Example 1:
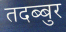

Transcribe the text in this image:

तदब्बुर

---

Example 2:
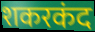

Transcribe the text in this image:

शकरकंद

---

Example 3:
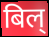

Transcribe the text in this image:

बिल्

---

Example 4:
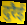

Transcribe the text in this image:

दुरैई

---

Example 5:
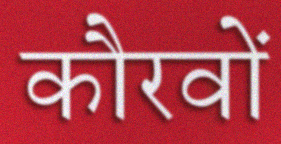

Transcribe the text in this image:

कौरवों